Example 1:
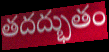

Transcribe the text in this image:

తదద్భుతం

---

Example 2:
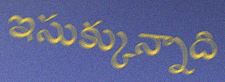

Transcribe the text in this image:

ఇసుక్కున్నాది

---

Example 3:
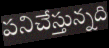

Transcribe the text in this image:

పనిచేస్తున్నది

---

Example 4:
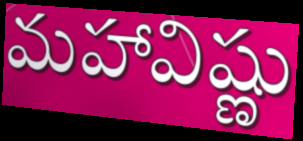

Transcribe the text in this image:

మహావిష్ణు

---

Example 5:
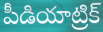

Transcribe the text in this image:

పీడియాట్రిక్